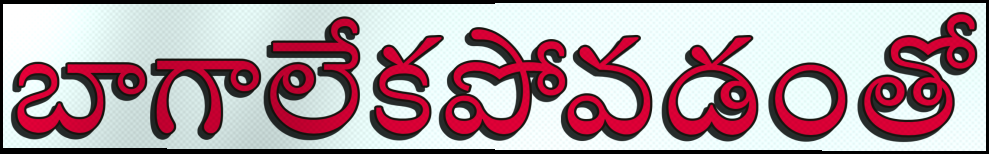
బాగాలేకపోవడంతో